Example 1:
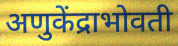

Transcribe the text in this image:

अणुकेंद्राभोवती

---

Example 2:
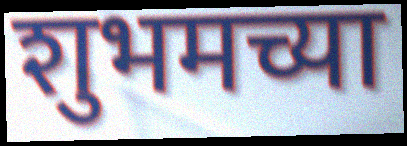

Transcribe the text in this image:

शुभमच्या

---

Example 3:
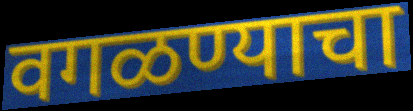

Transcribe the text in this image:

वगळण्याचा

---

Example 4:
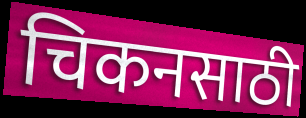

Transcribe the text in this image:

चिकनसाठी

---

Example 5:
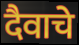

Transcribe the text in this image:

दैवाचे